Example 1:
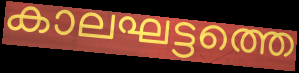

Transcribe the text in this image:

കാലഘട്ടത്തെ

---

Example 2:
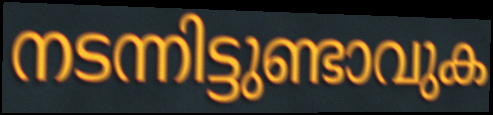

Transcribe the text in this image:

നടന്നിട്ടുണ്ടാവുക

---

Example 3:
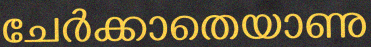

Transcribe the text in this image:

ചേർക്കാതെയാണു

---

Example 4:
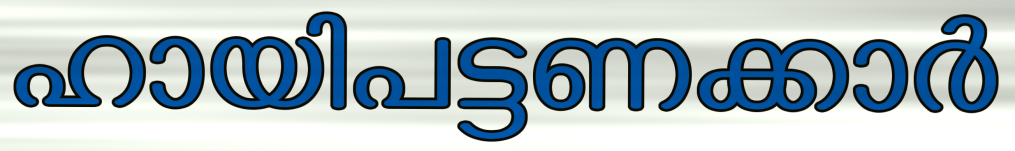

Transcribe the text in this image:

ഹായിപട്ടണക്കാർ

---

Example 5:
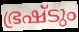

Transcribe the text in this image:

ഭ്രഷ്ടും